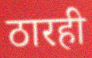
ठारही